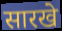
सारखे